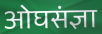
ओघसंज्ञा